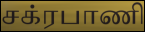
சக்ரபாணி